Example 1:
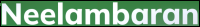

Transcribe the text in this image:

Neelambaran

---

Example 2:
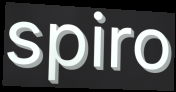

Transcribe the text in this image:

spiro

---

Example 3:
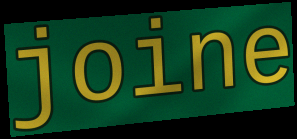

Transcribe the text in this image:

joine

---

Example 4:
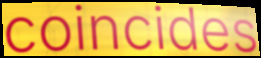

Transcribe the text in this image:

coincides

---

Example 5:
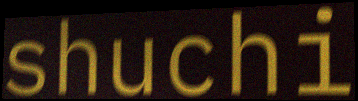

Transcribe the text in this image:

shuchi